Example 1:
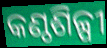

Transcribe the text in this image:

କଣ୍ଠଶିଳ୍ପୀ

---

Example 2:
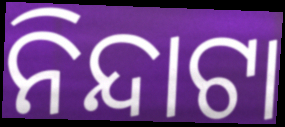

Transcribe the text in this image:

ନିନ୍ଦାଟା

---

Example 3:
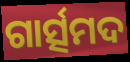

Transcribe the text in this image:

ଗାର୍ତ୍ସମଦ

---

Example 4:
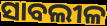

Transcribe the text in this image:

ସାବଲୀଳ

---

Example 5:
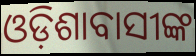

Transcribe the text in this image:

ଓଡ଼ିଶାବାସୀଙ୍କ